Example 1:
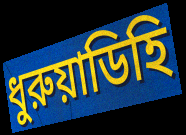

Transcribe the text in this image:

ধুরুয়াডিহি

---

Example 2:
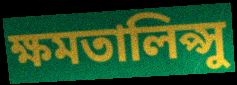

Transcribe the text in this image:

ক্ষমতালিপ্সু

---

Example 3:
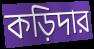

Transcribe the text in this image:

কড়িদার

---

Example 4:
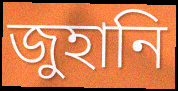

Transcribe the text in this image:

জুহানি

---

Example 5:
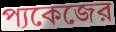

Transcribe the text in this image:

প্যকেজের